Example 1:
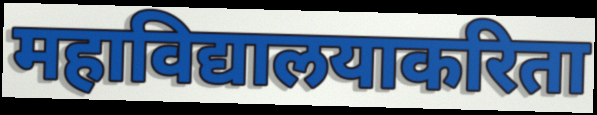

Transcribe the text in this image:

महाविद्यालयाकरिता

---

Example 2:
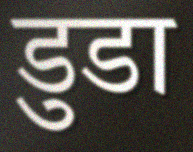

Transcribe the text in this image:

डुडा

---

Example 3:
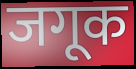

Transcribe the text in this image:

जगूक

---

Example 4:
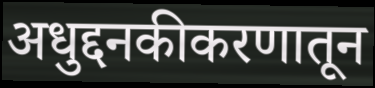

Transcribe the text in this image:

अधुद्दनकीकरणातून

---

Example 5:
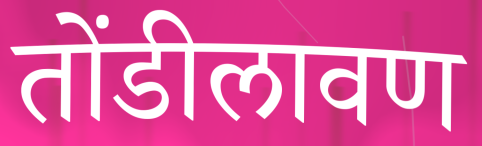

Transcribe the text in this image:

तोंडीलावण